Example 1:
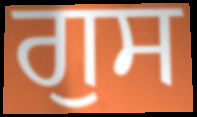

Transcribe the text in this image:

ਗੁਸ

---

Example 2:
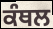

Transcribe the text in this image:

ਕੰਥਲ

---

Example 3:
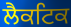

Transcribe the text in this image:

ਲੈਕਟਿਕ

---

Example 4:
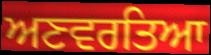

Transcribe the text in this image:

ਅਣਵਰਤਿਆ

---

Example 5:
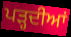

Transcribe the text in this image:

ਪੜ੍ਹਦੀਆਂ